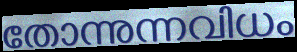
തോന്നുന്നവിധം